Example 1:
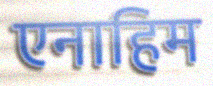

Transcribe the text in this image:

एनाहिम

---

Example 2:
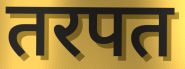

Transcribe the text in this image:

तरपत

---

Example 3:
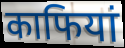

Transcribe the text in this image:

काफियां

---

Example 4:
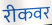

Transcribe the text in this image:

रीकवर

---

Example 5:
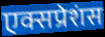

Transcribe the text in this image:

एक्सप्रेशंस